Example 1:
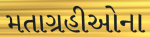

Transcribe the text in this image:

મતાગ્રહીઓના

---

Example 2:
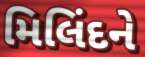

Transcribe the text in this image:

મિલિંદને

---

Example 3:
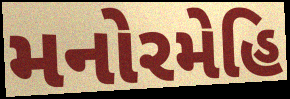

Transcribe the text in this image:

મનોરમેહિ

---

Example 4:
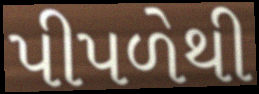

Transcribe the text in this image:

પીપળેથી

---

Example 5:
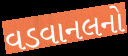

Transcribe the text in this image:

વડવાનલનો